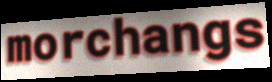
morchangs